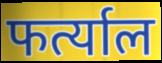
फर्त्याल